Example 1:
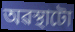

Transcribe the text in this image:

অৱস্থাটো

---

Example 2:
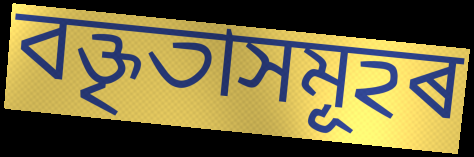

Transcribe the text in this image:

বক্তৃতাসমূহৰ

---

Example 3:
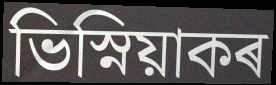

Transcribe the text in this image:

ভিস্নিয়াকৰ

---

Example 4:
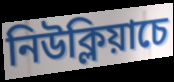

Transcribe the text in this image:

নিউক্লিয়াচে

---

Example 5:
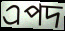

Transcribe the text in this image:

এপদ